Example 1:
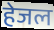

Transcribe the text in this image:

हेजल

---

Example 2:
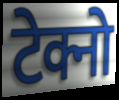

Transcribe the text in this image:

टेक्नो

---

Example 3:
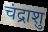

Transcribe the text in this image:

चंद्राशु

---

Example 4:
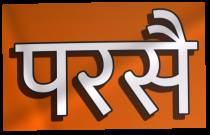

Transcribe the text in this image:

परसै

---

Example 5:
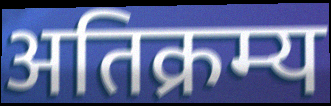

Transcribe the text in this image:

अतिक्रम्य